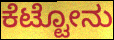
ಕೆಟ್ಟೋನು